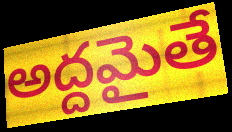
అద్దమైతే